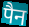
पैन